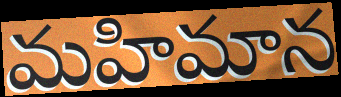
మహిమాన